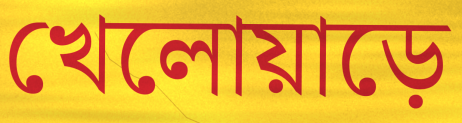
খেলোয়াড়ে